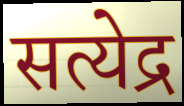
सत्येद्र